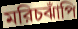
মরিচঝাঁপি